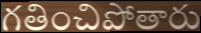
గతించిపోతారు